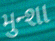
મુન્શા